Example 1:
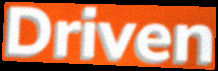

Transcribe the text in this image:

Driven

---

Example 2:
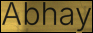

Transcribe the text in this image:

Abhay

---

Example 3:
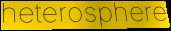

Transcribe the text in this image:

heterosphere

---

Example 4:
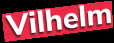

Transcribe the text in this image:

Vilhelm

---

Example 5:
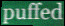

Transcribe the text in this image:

puffed